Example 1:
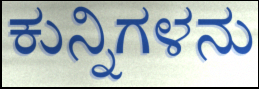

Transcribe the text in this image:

ಕುನ್ನಿಗಳನು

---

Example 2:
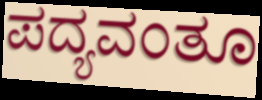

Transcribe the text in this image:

ಪದ್ಯವಂತೂ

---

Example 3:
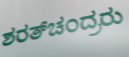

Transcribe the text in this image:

ಶರತ್‌ಚಂದ್ರರು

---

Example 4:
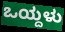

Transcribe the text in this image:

ಒಯ್ದಳು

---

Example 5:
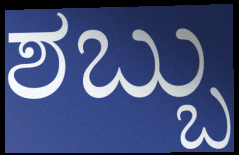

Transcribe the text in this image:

ಶಬ್ಬು